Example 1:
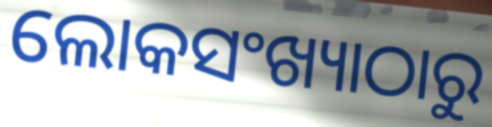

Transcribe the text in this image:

ଲୋକସଂଖ୍ୟାଠାରୁ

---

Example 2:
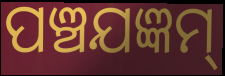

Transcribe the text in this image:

ପଞ୍ଚଯଜ୍ଞମ୍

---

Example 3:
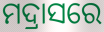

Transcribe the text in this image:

ମଦ୍ରାସରେ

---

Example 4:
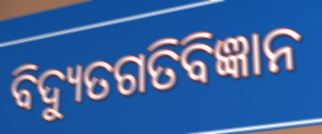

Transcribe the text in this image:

ବିଦ୍ୟୁତଗତିବିଜ୍ଞାନ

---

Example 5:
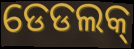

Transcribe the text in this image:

ଡେଡଲକ୍